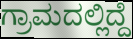
ಗ್ರಾಮದಲ್ಲಿದ್ದೆ